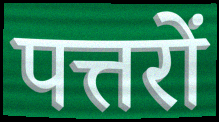
पत्तरों